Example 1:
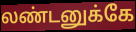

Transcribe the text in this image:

லண்டனுக்கே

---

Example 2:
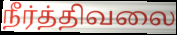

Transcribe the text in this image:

நீர்த்திவலை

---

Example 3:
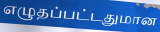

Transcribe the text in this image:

எழுதப்பட்டதுமான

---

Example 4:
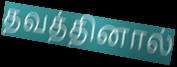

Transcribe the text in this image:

தவத்தினால்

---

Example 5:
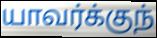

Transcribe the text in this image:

யாவர்க்குந்